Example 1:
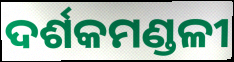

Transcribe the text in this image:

ଦର୍ଶକମଣ୍ଡଳୀ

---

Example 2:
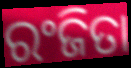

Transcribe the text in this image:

ରଂଜିତା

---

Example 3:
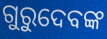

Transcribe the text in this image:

ଗୁରୁଦେବଙ୍କ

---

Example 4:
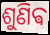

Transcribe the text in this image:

ଶୁଣିଵ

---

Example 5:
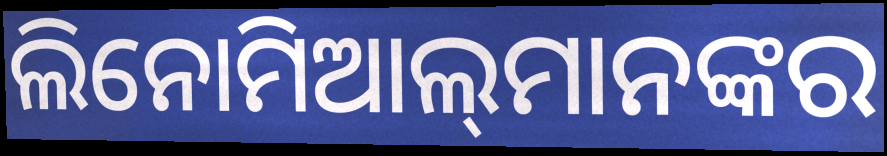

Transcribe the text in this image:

ଲିନୋମିଆଲ୍‌ମାନଙ୍କର